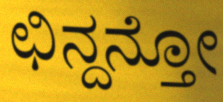
ಛಿನ್ದನ್ತೋ